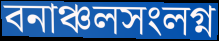
বনাঞ্চলসংলগ্ন